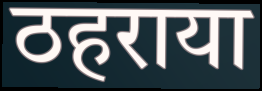
ठहराया